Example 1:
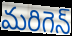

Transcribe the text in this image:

మరిగెన్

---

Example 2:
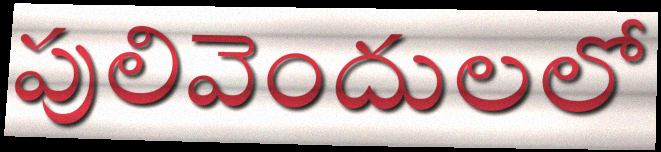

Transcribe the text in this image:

పులివెందులలో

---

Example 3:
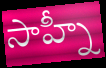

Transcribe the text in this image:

సాహ్నీ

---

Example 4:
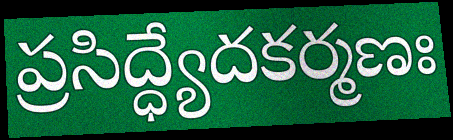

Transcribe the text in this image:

ప్రసిద్ధ్యేదకర్మణః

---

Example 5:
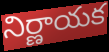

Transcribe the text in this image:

నిర్ణాయక